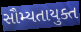
સૌમ્યતાયુક્ત